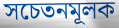
সচেতনমূলক